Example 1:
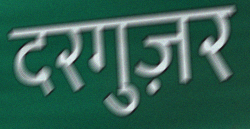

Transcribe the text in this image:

दरगुज़र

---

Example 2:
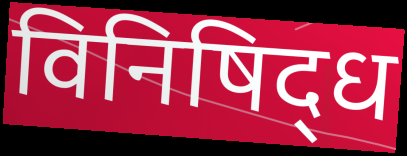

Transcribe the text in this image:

विनिषिद्ध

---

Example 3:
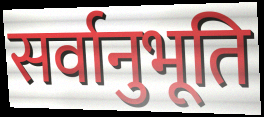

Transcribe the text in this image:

सर्वानुभूति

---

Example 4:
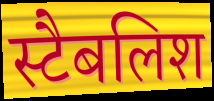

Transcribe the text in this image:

स्टैबलिश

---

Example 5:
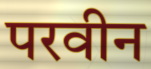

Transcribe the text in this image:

परवीन